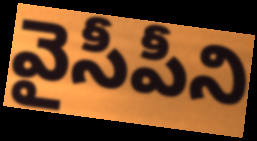
వైసీపీని